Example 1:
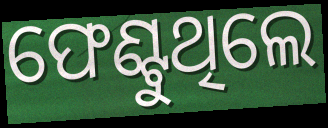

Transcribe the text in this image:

ଫେଣ୍ଟୁଥିଲେ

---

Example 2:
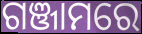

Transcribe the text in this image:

ଗଞ୍ଜାମରେ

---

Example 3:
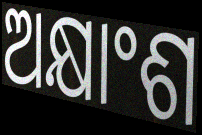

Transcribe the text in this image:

ଅକ୍ଷାଂଶ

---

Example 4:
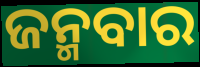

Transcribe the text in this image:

ଜନ୍ମବାର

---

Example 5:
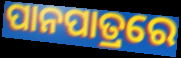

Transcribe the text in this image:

ପାନପାତ୍ରରେ